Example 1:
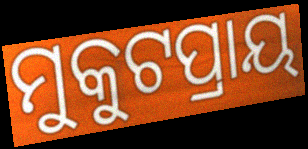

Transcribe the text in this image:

ମୁକୁଟପ୍ରାୟ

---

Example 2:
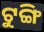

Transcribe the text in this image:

ଟୁଙ୍ଗି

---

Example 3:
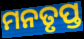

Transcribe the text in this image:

ମନତୃପ୍ତ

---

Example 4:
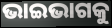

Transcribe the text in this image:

ଭାଇଭାଗକୁ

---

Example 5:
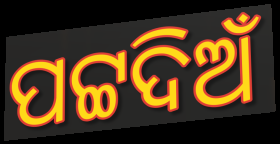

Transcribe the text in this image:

ପଟ୍ଟଦିଅଁ